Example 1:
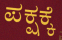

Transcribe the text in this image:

ಪಕ್ಷಕ್ಕೆ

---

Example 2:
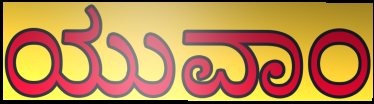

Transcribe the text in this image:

ಯುವಾಂ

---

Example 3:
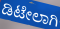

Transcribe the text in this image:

ಡಿಟೇಲಾಗಿ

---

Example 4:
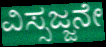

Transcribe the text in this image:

ವಿಸ್ಸಜ್ಜನೇ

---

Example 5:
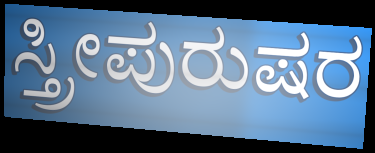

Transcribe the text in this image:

ಸ್ತ್ರೀಪುರುಷರ